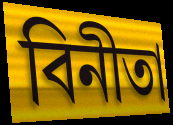
বিনীতা